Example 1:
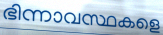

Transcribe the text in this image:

ഭിന്നാവസ്ഥകളെ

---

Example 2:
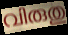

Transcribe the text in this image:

വിരുതു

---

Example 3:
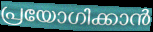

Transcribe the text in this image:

പ്രയോഗിക്കാൻ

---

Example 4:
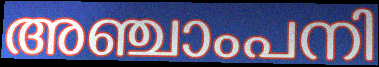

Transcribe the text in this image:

അഞ്ചാംപനി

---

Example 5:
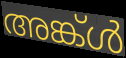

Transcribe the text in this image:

അങ്ക്ൾ